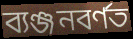
ব্যঞ্জনবৰ্ণত